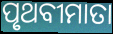
ପୃଥବୀମାତା